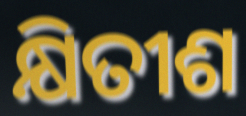
କ୍ଷିତୀଶ